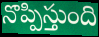
నొప్పిస్తుంది